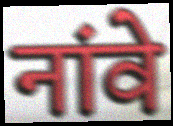
नांवे